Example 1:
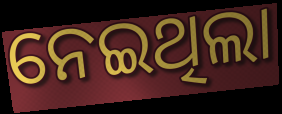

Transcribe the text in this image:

ନେଇଥିଲା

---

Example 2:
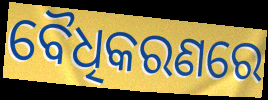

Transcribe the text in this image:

ବୈଧିକରଣରେ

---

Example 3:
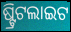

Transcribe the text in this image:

ଷ୍ଟ୍ରିଟଲାଇଟ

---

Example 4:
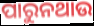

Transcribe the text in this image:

ପାରୁନଥାଉ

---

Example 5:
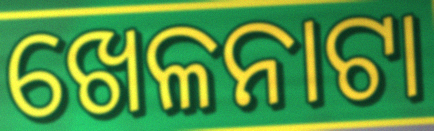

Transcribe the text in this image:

ଖେଳନାଟା